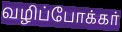
வழிப்போக்கர்